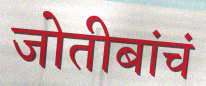
जोतीबांचं